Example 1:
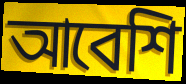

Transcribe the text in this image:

আবেশি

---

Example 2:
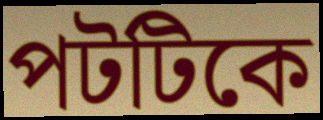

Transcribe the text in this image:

পটটিকে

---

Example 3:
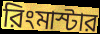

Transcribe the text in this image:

রিংমাস্টার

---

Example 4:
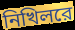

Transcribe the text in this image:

নিখিলরে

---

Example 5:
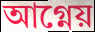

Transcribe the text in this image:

আগ্নেয়